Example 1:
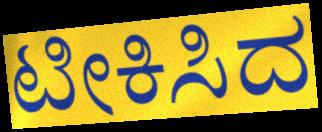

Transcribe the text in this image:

ಟೀಕಿಸಿದ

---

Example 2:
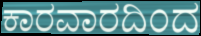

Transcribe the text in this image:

ಕಾರವಾರದಿಂದ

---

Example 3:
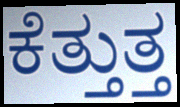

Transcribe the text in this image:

ಕೆತ್ತುತ್ತ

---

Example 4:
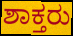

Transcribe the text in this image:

ಶಾಕ್ತರು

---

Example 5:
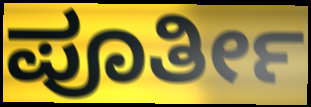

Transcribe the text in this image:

ಪೂರ್ತೀ